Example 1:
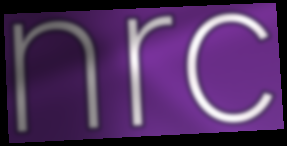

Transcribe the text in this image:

nrc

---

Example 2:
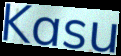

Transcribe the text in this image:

Kasu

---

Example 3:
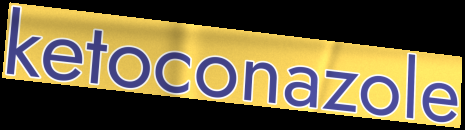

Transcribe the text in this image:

ketoconazole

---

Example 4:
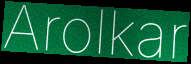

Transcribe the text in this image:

Arolkar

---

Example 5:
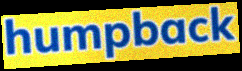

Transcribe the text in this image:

humpback